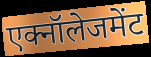
एक्नॉलेजमेंट